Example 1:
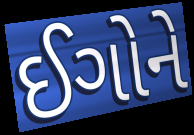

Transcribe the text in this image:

ઈગોને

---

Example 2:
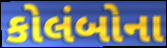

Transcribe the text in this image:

કોલંબોના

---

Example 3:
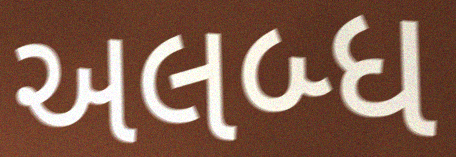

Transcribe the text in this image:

અલબ્ધ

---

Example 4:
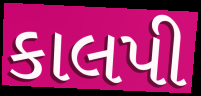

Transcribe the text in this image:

કાલપી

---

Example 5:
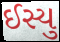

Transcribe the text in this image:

ઈસ્યુ